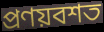
প্রণয়বশত